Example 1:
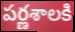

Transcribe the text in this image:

పర్ణశాలకి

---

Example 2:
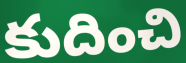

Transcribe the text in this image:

కుదించి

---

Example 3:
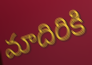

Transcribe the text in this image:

మాదిరికి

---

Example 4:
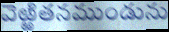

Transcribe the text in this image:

వెఱ్ఱితనముండును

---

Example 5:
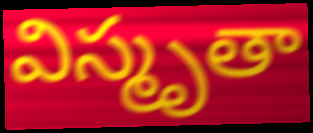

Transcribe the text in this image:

విస్మృతా